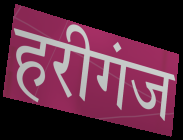
हरीगंज